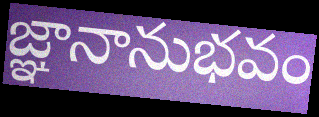
జ్ఞానానుభవం